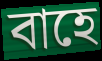
বাহে